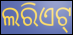
ଲରିଏଟ୍